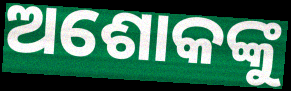
ଅଶୋକଙ୍କୁ